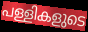
പള്ളികളുടെ